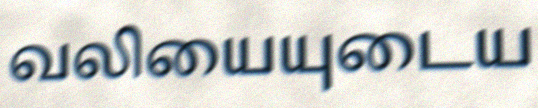
வலியையுடைய